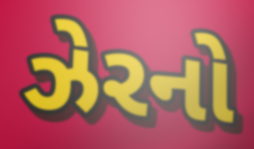
ઝેરનો